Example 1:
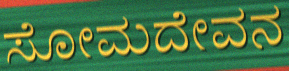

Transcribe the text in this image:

ಸೋಮದೇವನ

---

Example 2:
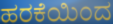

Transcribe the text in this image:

ಹರಕೆಯಿಂದ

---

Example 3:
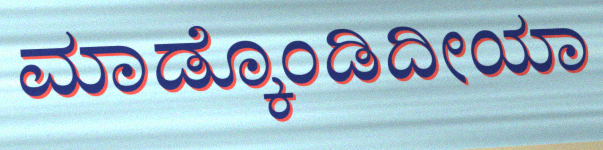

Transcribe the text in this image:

ಮಾಡ್ಕೊಂಡಿದೀಯಾ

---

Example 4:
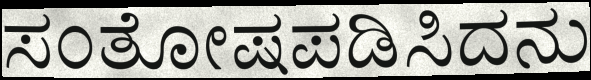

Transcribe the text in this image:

ಸಂತೋಷಪಡಿಸಿದನು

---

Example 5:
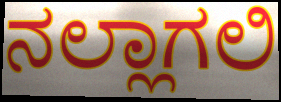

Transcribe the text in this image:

ನಲ್ಲಾಗಲಿ